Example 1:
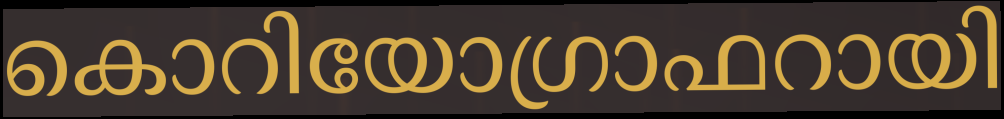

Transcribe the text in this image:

കൊറിയോഗ്രാഫറായി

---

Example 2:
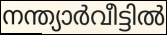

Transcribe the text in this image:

നന്ത്യാർവീട്ടിൽ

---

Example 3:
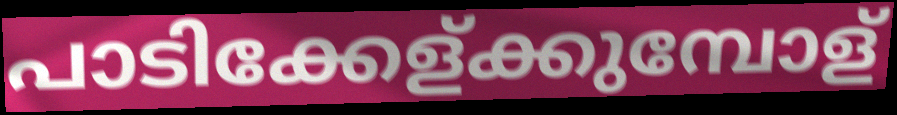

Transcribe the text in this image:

പാടിക്കേള്ക്കുമ്പോള്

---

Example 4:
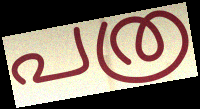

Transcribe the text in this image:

പത്ര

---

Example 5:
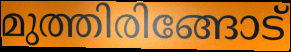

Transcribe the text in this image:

മുത്തിരിങ്ങോട്